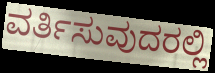
ವರ್ತಿಸುವುದರಲ್ಲಿ